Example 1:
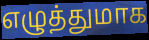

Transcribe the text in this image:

எழுத்துமாக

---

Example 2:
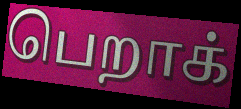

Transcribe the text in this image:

பெறாக்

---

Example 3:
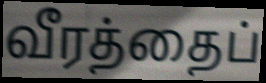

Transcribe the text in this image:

வீரத்தைப்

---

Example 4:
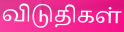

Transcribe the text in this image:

விடுதிகள்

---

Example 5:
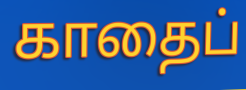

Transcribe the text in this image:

காதைப்